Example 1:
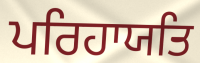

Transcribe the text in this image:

ਪਰਿਹਾਯਤਿ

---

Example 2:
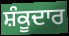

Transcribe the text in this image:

ਸ਼ੰਕੂਦਾਰ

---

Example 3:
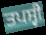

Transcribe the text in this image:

ਤਪਸ੍ਵੀ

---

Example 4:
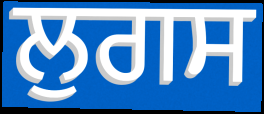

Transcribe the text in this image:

ਲੁਗਸ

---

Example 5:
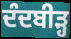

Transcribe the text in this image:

ਦੰਦਬੀੜ੍ਹ